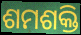
ଶମଶକ୍ତି